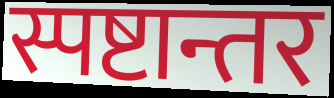
स्पष्टान्तर